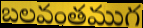
బలవంతముగ